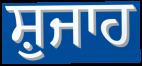
ਸ਼ੁਜਾਹ